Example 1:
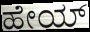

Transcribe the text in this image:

ಹೇಯ್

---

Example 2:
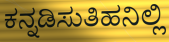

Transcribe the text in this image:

ಕನ್ನಡಿಸುತಿಹನಿಲ್ಲಿ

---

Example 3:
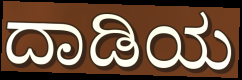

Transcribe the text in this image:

ದಾಡಿಯ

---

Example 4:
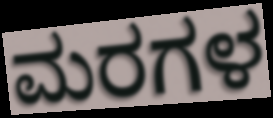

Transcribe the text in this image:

ಮರಗಳ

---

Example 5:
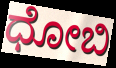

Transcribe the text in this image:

ಧೋಬಿ